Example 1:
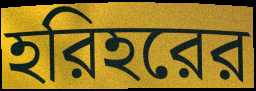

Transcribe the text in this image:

হরিহরের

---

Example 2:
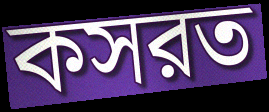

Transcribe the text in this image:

কসরত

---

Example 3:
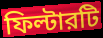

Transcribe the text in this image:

ফিল্টারটি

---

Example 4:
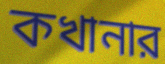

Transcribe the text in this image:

কখানার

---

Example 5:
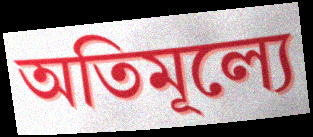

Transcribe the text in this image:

অতিমূল্যে